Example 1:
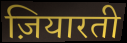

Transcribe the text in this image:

ज़ियारती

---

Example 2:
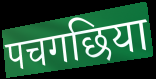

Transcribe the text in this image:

पचगछिया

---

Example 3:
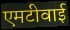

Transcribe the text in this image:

एमटीवाई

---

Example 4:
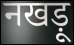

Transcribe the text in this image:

नखड़ू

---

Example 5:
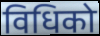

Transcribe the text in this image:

विधिको